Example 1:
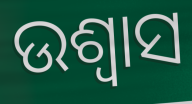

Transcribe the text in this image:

ଉଶ୍ୱାସ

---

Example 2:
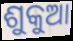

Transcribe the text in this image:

ଶୁକୁଆ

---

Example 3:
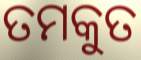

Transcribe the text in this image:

ତମକୁତ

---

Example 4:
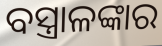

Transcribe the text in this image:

ବସ୍ତ୍ରାଳଙ୍କାର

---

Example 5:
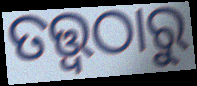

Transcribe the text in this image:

ତତ୍ତ୍ବଠାରୁ